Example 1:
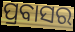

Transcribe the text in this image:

ପ୍ରବାସର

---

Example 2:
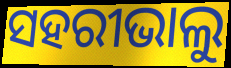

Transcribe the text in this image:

ସହରୀଭାଲୁ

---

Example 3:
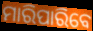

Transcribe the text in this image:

ମାରିପାରିବେ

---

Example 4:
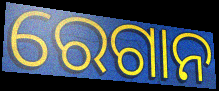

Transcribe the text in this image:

ରେଗାନ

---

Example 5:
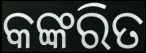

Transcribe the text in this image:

କଙ୍କରିତ